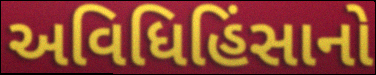
અવિધિહિંસાનો